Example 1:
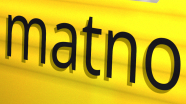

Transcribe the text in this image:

matno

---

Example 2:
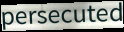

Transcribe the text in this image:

persecuted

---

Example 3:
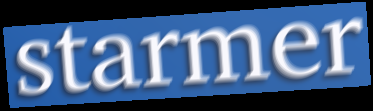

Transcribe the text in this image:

starmer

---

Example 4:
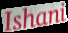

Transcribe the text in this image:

Ishani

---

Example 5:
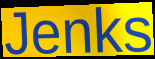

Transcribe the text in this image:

Jenks